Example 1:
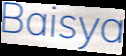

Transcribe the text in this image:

Baisya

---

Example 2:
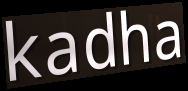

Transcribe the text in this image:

kadha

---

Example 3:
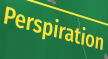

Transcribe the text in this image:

Perspiration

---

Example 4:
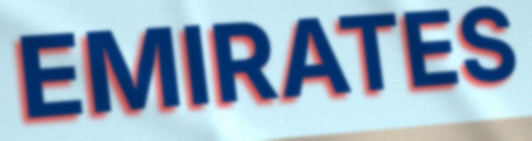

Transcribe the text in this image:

EMIRATES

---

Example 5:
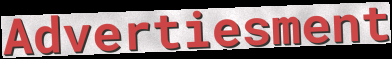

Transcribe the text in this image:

Advertiesment